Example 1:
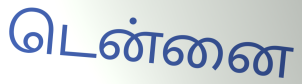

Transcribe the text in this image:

டென்னை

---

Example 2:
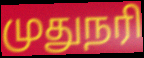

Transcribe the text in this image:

முதுநரி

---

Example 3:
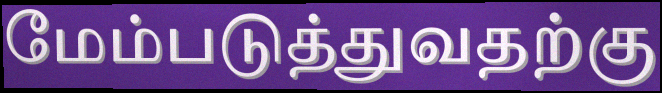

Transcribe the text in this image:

மேம்படுத்துவதற்கு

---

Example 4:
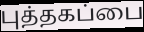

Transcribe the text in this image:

புத்தகப்பை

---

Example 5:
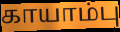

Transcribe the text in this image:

காயாம்பு